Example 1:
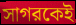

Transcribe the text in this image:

সাগরকেই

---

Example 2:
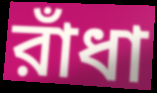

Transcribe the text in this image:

রাঁধা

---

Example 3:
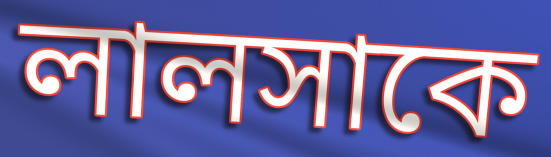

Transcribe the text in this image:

লালসাকে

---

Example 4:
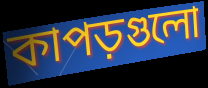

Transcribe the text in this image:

কাপড়গুলো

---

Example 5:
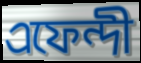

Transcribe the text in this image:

এফেন্দী